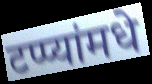
टप्प्यांमधे